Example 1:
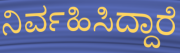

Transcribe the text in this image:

ನಿರ್ವಹಿಸಿದ್ದಾರೆ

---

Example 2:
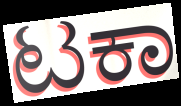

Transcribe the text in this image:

ಟಕಾ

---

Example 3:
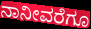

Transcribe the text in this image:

ನಾನೀವರೆಗೂ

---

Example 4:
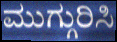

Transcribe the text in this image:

ಮುಗ್ಗುರಿಸಿ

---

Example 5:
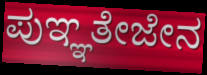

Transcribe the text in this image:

ಪುಞ್ಞತೇಜೇನ